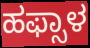
ಹಫ್ಸಾಳ